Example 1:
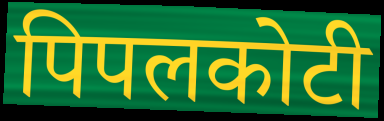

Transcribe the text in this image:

पिपलकोटी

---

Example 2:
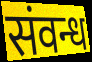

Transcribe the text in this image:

संवन्ध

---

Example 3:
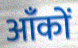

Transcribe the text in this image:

आँकों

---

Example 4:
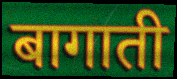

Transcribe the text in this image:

बागाती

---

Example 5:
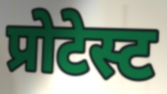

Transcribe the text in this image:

प्रोटेस्ट